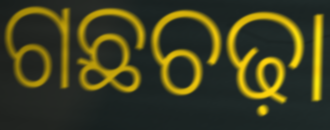
ଗଛଚଢ଼ା